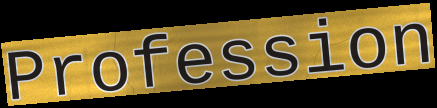
Profession